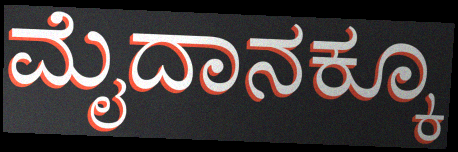
ಮೈದಾನಕ್ಕೂ